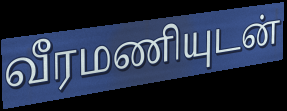
வீரமணியுடன்